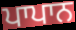
ਪਾਪਾਨ